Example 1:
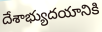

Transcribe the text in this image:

దేశాభ్యుదయానికి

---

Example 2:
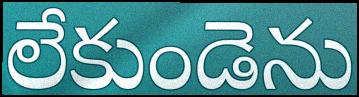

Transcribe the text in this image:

లేకుండెను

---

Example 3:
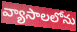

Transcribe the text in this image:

వ్యాసాలలోను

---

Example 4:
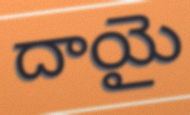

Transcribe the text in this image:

దాయై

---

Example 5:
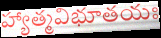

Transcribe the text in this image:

హ్యాత్మవిభూతయః